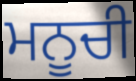
ਮਨੂਚੀ